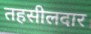
तहसीलदार